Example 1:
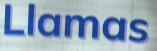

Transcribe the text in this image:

Llamas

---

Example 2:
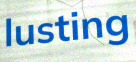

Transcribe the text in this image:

lusting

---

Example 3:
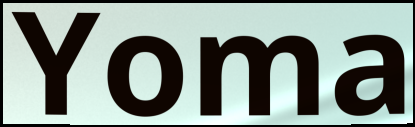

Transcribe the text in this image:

Yoma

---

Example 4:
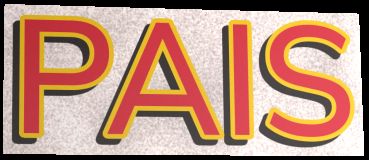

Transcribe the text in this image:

PAIS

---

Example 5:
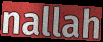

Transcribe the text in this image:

nallah